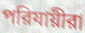
পরিযায়ীরা